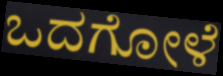
ಒದಗೋಳೆ